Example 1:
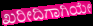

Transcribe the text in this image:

ಖರೀದಿಗಾಗಿಯೇ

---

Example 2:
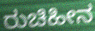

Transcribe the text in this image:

ರುಚಿಹೀನ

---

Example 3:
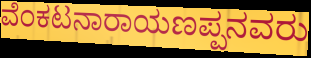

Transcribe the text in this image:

ವೆಂಕಟನಾರಾಯಣಪ್ಪನವರು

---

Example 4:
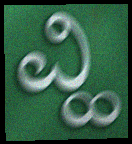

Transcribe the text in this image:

ವ್ಹಿ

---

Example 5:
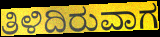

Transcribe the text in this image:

ತಿಳಿದಿರುವಾಗ